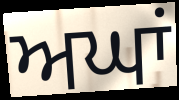
ਅਘਾਂ